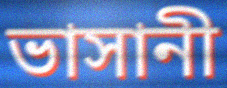
ভাসানী